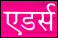
एडर्स